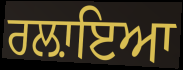
ਰਲ਼ਾਇਆ